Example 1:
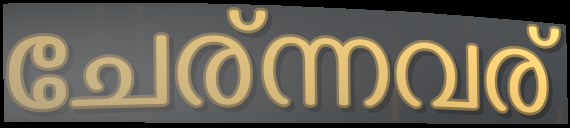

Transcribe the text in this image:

ചേര്ന്നവര്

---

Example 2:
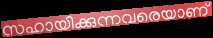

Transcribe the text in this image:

സഹായിക്കുന്നവരെയാണ്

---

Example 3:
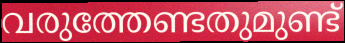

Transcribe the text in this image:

വരുത്തേണ്ടതുമുണ്ട്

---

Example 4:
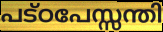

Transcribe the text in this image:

പട്ഠപേസ്സന്തി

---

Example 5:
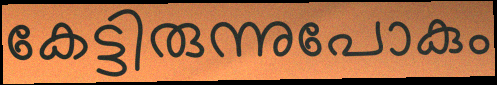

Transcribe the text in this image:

കേട്ടിരുന്നുപോകും